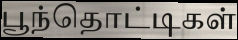
பூந்தொட்டிகள்